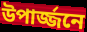
উপার্জ্জনে